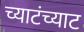
च्याटंच्याट